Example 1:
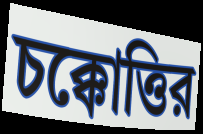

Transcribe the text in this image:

চক্কোত্তির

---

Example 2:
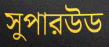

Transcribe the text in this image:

সুপারউড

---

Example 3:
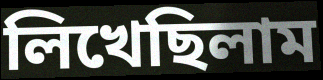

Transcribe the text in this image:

লিখেছিলাম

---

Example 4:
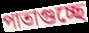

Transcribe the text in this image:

পাতাগুচ্ছে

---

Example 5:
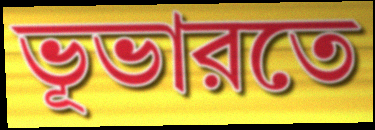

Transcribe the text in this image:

ভূভারতে